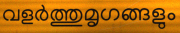
വളർത്തുമൃഗങ്ങളും